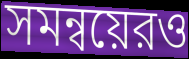
সমন্বয়েরও